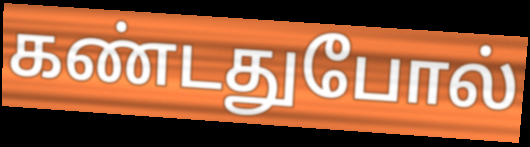
கண்டதுபோல்